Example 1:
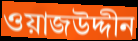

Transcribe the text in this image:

ওয়াজউদ্দীন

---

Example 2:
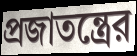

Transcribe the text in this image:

প্রজাতন্ত্রের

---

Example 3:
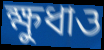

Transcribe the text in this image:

ক্ষুধাও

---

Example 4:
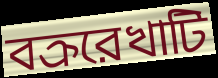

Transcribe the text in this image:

বক্ররেখাটি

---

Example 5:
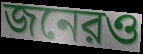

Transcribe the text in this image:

জনেরও